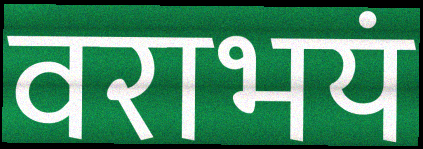
वराभयं